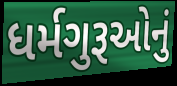
ધર્મગુરૂઓનું